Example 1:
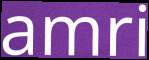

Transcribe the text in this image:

amri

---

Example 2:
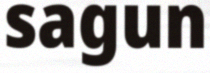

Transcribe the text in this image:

sagun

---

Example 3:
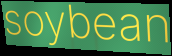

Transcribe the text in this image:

soybean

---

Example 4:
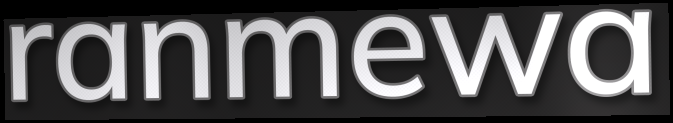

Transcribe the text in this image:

ranmewa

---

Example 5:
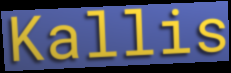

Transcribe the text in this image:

Kallis